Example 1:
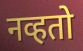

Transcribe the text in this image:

नव्हतो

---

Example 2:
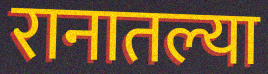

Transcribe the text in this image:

रानातल्या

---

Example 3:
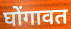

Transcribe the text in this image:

घोंगावत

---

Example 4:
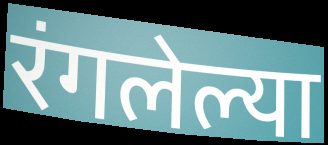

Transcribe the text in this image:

रंगलेल्या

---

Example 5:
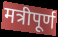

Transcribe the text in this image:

मत्रीपूर्ण